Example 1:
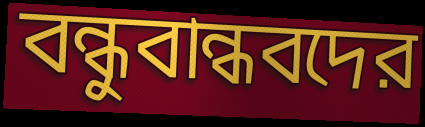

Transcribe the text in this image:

বন্ধুবান্ধবদের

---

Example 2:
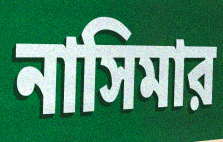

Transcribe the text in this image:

নাসিমার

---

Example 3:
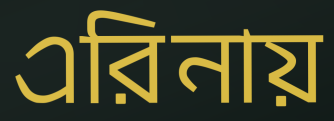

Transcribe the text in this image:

এরিনায়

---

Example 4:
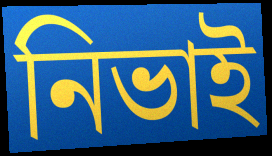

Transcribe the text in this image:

নিভাই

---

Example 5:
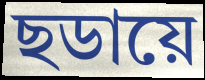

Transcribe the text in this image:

ছডায়ে